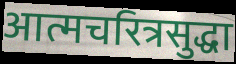
आत्मचरित्रसुद्धा